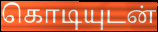
கொடியுடன்